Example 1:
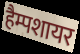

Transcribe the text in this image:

हैम्पशायर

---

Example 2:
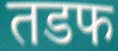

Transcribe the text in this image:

तडफ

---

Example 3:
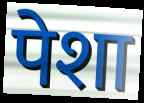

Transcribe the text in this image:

पेशा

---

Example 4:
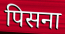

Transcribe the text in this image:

पिसना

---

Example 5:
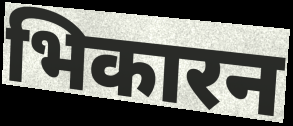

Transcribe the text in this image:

भिकारन